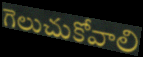
గెలుచుకోవాలి